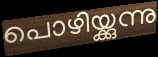
പൊഴിയ്ക്കുന്നു